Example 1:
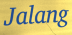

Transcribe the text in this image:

Jalang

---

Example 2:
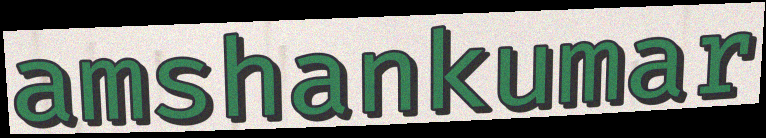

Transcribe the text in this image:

amshankumar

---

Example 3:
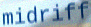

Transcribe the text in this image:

midriff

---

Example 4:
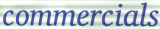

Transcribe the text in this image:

commercials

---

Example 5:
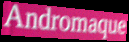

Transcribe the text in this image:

Andromaque